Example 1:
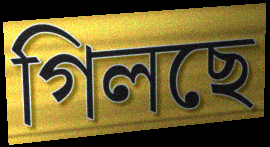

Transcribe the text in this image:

গিলছে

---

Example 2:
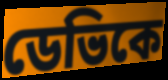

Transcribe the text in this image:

ডেভিকে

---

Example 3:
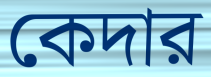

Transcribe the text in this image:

কেদার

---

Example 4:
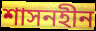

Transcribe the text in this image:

শাসনহীন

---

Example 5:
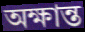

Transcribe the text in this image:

অক্ষান্ত